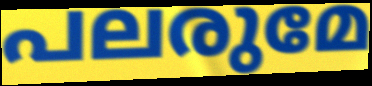
പലരുമേ